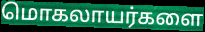
மொகலாயர்களை